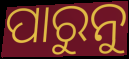
ପାରୁନୁ